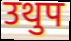
उथुप